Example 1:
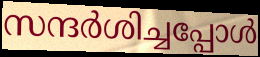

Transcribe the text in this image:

സന്ദർശിച്ചപ്പോൾ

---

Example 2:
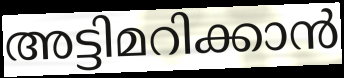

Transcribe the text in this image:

അട്ടിമറിക്കാൻ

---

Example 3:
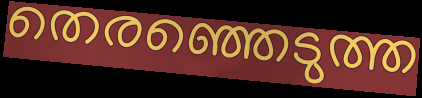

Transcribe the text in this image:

തെരഞ്ഞെടുത്ത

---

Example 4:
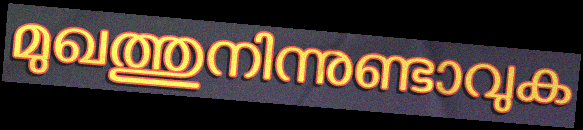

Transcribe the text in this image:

മുഖത്തുനിന്നുണ്ടാവുക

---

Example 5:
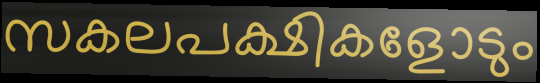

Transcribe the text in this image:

സകലപക്ഷികളോടും